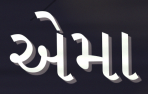
એમા